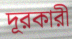
দূরকারী